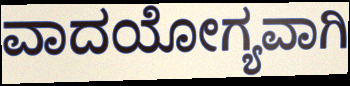
ವಾದಯೋಗ್ಯವಾಗಿ